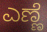
ಎಣ್ಣೆ